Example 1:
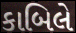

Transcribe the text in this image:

કાબિલે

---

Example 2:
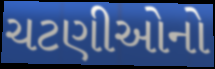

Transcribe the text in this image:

ચટણીઓનો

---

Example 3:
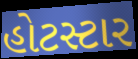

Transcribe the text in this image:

હોટસ્ટાર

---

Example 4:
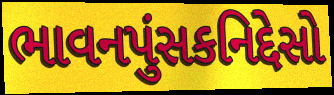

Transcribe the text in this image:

ભાવનપુંસકનિદ્દેસો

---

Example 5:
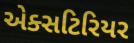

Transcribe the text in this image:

એક્સટિરિયર